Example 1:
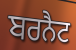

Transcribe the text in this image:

ਬਰਨੈਟ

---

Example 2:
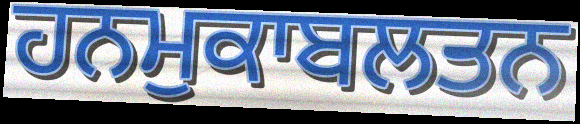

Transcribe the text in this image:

ਹਨਮੁਕਾਬਲਤਨ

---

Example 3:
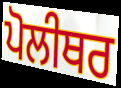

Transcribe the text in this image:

ਪੋਲੀਥਰ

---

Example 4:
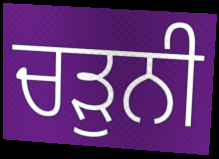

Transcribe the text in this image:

ਚੜੁਨੀ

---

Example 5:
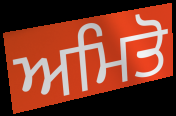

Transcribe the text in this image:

ਅਮਿਤੋ